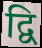
द्वि